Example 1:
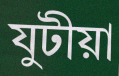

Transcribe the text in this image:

যুটীয়া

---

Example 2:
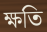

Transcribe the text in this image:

ক্ষতি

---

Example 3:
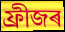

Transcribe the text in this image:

ফ্ৰীজৰ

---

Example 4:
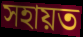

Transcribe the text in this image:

সহায়ত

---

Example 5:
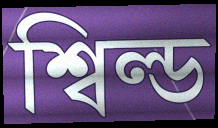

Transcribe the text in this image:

শ্বিল্ড